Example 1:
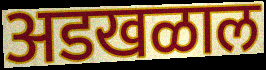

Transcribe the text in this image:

अडखळाल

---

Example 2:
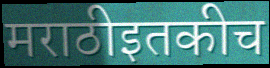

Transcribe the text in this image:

मराठीइतकीच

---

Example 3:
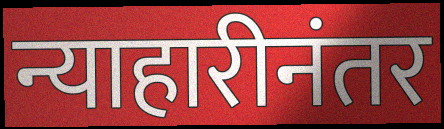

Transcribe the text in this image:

न्याहारीनंतर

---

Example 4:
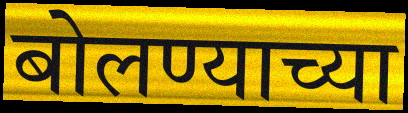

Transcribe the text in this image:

बोलण्याच्या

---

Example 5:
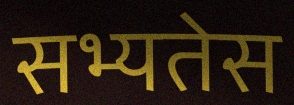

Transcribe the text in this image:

सभ्यतेस